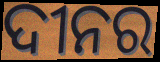
ଦୀନର